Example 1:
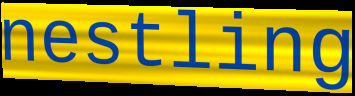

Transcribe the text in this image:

nestling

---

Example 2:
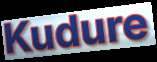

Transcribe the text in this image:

Kudure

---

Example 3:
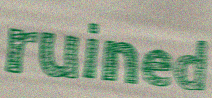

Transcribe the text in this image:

ruined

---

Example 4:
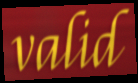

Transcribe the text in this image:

valid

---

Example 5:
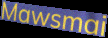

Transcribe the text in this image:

Mawsmai